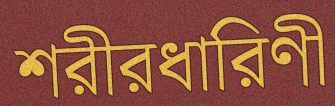
শরীরধারিণী